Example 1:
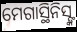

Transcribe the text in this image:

ମେଗାସ୍ଥିନିସ୍ଙ୍କ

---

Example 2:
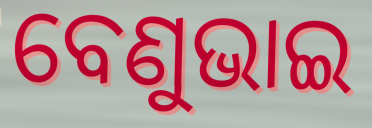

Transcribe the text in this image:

ବେଣୁଭାଇ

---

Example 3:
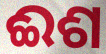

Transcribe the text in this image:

ଈଶ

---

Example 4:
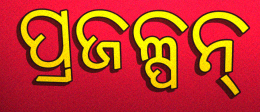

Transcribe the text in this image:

ପ୍ରଜଳ୍ପନ୍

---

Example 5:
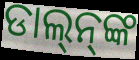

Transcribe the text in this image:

ଡାଲ୍‌ନ୍‌ଙ୍କ